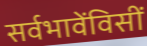
सर्वभावेंविसीं